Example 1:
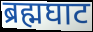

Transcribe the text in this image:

ब्रह्मघाट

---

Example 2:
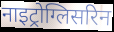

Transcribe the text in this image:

नाइट्रोग्लिसरिन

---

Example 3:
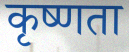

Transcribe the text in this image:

कृष्णता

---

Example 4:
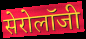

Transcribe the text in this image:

सेरोलॉजी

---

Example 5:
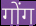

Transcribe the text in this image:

गोंग